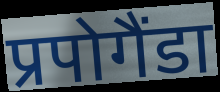
प्रपोगैंडा